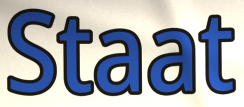
Staat